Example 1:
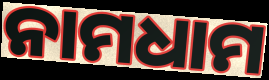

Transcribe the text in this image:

ନାମଧାମ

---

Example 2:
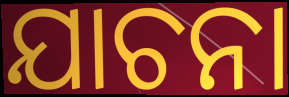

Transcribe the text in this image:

ଯାଚନା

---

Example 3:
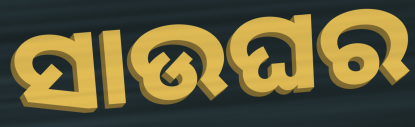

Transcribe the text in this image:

ସାଉଘର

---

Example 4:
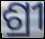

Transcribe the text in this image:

ଶ୍ରୀ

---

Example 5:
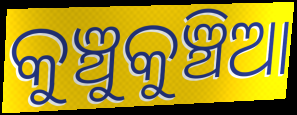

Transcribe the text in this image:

କୁଞ୍ଚୁକୁଞ୍ଚିଆ